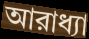
আরাধ্যা